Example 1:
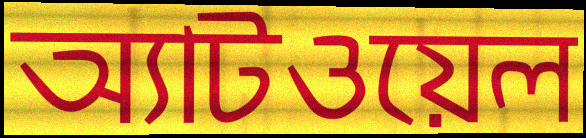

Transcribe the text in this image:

অ্যাটওয়েল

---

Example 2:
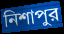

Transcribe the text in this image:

নিশাপুর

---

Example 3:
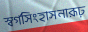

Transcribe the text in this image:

স্বর্গসিংহাসনারূঢ়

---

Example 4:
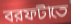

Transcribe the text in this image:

বরফটাতে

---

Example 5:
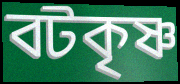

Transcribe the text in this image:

বটকৃষ্ণ